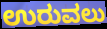
ಉರುವಲು